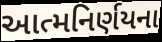
આત્મનિર્ણયના